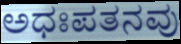
ಅಧಃಪತನವು